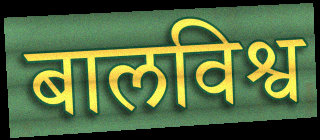
बालविश्व